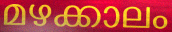
മഴക്കാലം